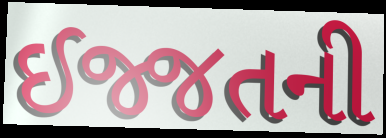
ઈજ્જતની